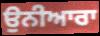
ਉਨੀਆਰਾ